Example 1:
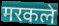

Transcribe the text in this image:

मरकले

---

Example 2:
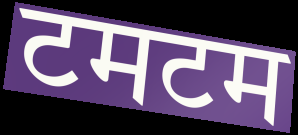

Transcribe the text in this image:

टमटम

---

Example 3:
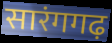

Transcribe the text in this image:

सारंगगढ़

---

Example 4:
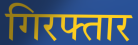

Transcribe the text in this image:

गिरफ्‍तार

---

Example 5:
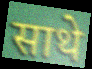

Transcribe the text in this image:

साथे